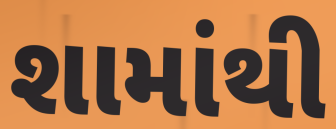
શામાંથી